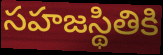
సహజస్థితికి